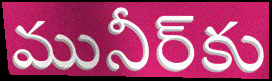
మునీర్‌కు